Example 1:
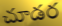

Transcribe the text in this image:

చూడర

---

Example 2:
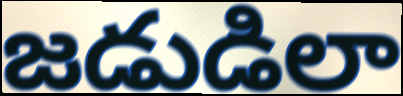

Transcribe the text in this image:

జడుడిలా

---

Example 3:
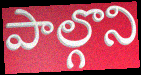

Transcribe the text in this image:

పాల్గొని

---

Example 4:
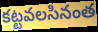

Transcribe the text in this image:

కట్టవలసినంత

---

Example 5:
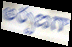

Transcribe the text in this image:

అర్పణగా